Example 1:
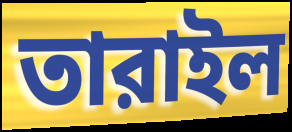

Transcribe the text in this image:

তারাইল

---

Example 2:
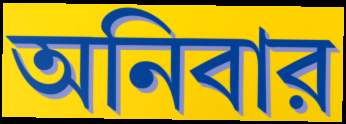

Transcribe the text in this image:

অনিবার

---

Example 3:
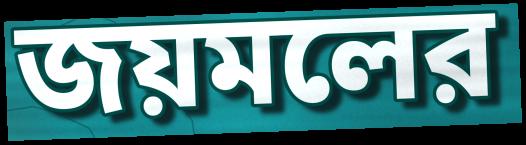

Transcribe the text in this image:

জয়মলের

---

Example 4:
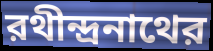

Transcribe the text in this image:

রথীন্দ্রনাথের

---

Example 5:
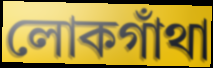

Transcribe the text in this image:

লোকগাঁথা